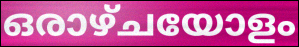
ഒരാഴ്ചയോളം